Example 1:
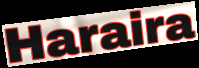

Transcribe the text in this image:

Haraira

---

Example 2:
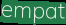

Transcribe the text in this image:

empat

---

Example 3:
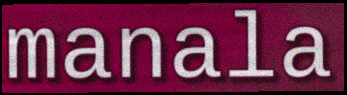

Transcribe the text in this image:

manala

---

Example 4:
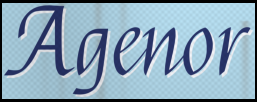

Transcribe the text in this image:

Agenor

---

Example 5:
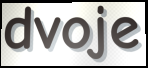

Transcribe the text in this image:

dvoje